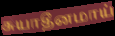
சுயாதீனமாய்